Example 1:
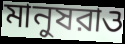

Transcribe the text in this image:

মানুষরাও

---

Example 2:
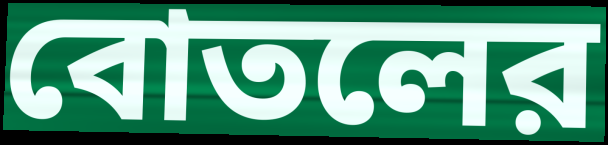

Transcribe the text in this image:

বোতলের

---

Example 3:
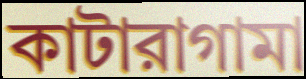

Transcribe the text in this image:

কাটারাগামা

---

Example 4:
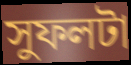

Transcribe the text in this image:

সুফলটা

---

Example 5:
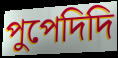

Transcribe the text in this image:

পুপেদিদি